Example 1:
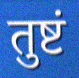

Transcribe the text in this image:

तुष्टं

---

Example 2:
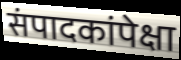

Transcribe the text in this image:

संपादकांपेक्षा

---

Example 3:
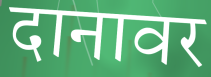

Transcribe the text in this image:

दानावर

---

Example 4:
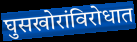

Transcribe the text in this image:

घुसखोरांविरोधात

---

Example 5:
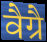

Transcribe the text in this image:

वैग्रै